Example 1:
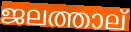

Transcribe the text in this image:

ജലത്താല്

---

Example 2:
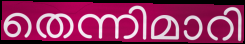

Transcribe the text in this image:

തെന്നിമാറി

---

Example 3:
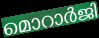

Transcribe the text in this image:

മൊറാർജി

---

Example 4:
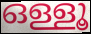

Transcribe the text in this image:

ഒള്ളൂ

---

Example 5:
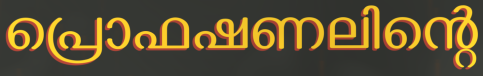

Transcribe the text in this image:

പ്രൊഫഷണലിന്റെ